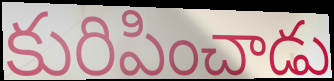
కురిపించాడు